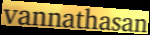
vannathasan